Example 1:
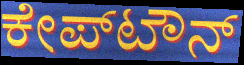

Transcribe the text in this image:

ಕೇಪ್‌ಟೌನ್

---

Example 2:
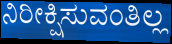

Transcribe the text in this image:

ನಿರೀಕ್ಷಿಸುವಂತಿಲ್ಲ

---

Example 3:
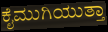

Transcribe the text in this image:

ಕೈಮುಗಿಯುತ್ತಾ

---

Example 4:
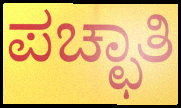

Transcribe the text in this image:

ಪಚ್ಛಾತಿ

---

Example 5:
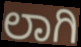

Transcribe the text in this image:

ಲಾಗಿ